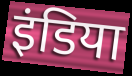
इंडिया